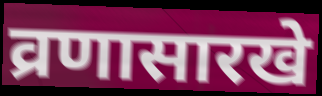
व्रणासारखे